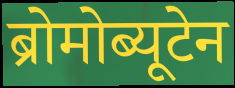
ब्रोमोब्यूटेन